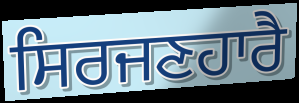
ਸਿਰਜਣਹਾਰੈ